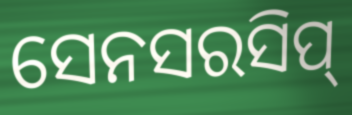
ସେନସରସିପ୍